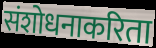
संशोधनाकरिता